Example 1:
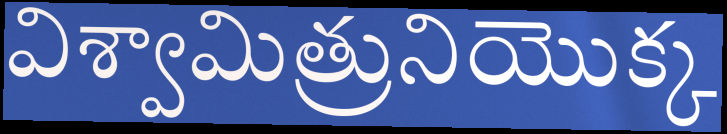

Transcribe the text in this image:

విశ్వామిత్రునియొక్క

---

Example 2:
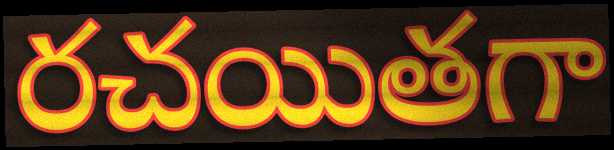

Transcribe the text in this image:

రచయితగా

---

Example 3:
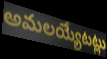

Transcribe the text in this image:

అమలయ్యేటట్లు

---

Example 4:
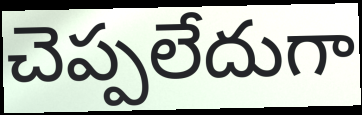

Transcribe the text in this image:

చెప్పలేదుగా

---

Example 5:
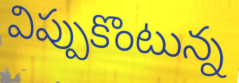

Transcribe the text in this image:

విప్పుకొంటున్న